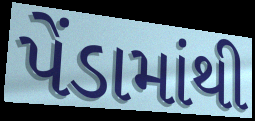
પેંડામાંથી